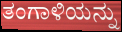
ತಂಗಾಳಿಯನ್ನು